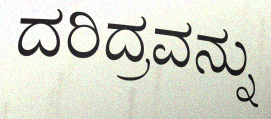
ದರಿದ್ರವನ್ನು